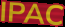
IPAC